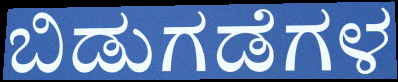
ಬಿಡುಗಡೆಗಳ